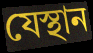
যেস্থান